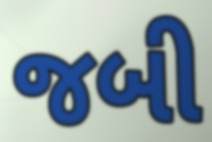
જબી